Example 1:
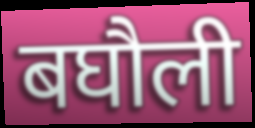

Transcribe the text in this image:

बघौली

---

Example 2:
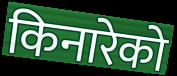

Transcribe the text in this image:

किनारेको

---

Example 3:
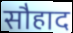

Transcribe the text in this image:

सौहाद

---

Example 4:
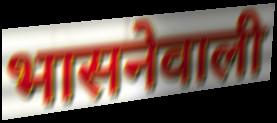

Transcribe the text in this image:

भासनेवाली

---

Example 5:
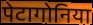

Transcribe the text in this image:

पेटागोनिया